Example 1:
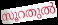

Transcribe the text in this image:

സൂറതുൽ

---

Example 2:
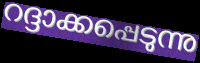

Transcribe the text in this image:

റദ്ദാക്കപ്പെടുന്നു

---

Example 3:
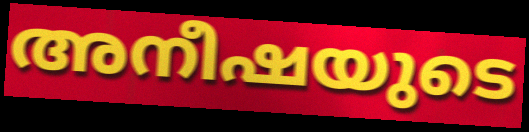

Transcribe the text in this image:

അനീഷയുടെ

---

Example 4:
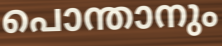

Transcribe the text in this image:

പൊന്താനും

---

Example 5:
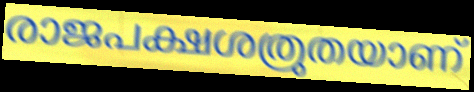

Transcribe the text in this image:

രാജപക്ഷശത്രുതയാണ്